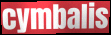
cymbalis